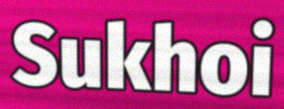
Sukhoi